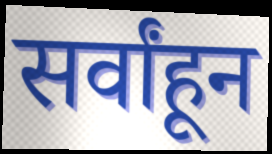
सर्वांहून